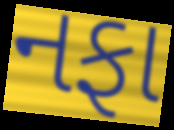
નફા